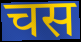
चस